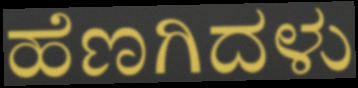
ಹೆಣಗಿದಳು